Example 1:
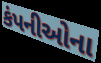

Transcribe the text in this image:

કંપનીઓના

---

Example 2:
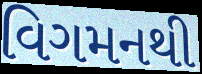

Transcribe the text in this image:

વિગમનથી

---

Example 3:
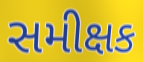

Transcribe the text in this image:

સમીક્ષક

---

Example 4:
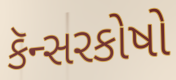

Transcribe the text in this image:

કૅન્સરકોષો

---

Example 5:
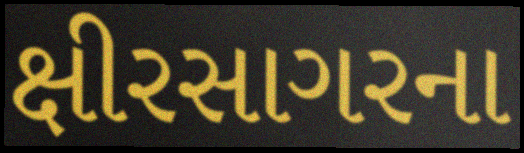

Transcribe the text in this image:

ક્ષીરસાગરના